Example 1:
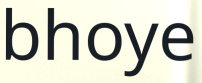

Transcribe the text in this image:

bhoye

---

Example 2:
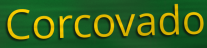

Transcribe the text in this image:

Corcovado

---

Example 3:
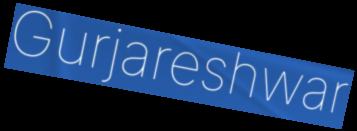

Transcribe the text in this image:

Gurjareshwar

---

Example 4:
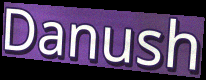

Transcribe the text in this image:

Danush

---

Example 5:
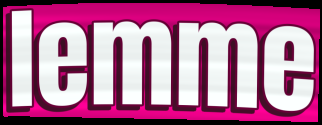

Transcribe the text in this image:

lemme